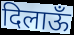
दिलाऊँ